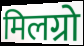
मिलग्रो